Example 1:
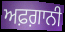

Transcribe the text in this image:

ਅਫ਼ਗ਼ਾਨੀ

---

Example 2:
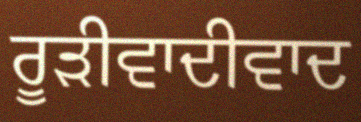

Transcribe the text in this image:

ਰੂੜੀਵਾਦੀਵਾਦ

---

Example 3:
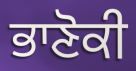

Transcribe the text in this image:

ਭਾਣੋਕੀ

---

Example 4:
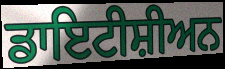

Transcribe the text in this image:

ਡਾਇਟੀਸ਼ੀਅਨ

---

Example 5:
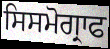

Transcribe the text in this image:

ਸਿਸਮੋਗ੍ਰਾਫ